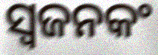
ସ୍ଵଜନକଂ